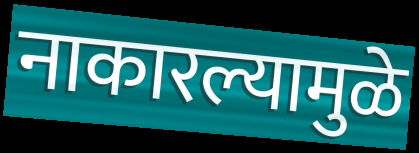
नाकारल्यामुळे